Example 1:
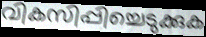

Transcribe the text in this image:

വികസിപ്പിച്ചെടുക്കുക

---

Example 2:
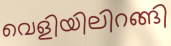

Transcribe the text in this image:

വെളിയിലിറങ്ങി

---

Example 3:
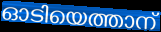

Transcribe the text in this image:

ഓടിയെത്താന്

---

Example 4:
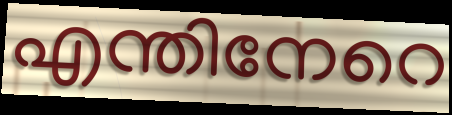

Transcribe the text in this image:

എന്തിനേറെ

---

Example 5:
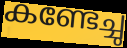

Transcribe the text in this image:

കണ്ടേച്ചു